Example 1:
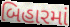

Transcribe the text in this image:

બિહારમાં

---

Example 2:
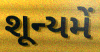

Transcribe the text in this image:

શૂન્યમેં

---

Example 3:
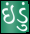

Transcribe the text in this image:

ઇંડું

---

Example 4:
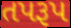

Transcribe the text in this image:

તપરૂપ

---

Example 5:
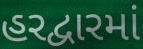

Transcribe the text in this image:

હરદ્વારમાં